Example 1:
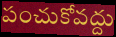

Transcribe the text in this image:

పంచుకోవద్దు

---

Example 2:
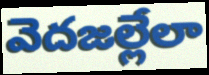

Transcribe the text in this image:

వెదజల్లేలా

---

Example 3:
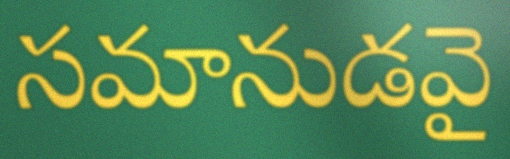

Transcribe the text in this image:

సమానుడవై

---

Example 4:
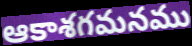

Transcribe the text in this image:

ఆకాశగమనము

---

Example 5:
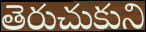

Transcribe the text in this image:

తెరుచుకుని